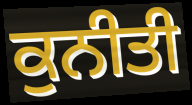
ਕੁਨੀਤੀ